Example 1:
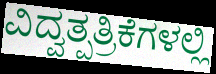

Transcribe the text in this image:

ವಿದ್ವತ್ಪತ್ರಿಕೆಗಳಲ್ಲಿ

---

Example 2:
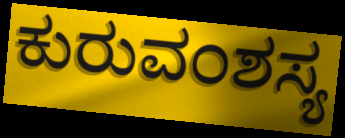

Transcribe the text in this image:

ಕುರುವಂಶಸ್ಯ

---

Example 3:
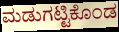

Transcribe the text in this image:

ಮಡುಗಟ್ಟಿಕೊಂಡ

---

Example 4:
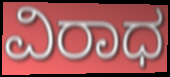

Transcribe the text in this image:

ವಿರಾಧ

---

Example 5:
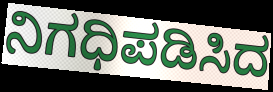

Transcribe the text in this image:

ನಿಗಧಿಪಡಿಸಿದ